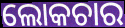
ଲୋକଚାର